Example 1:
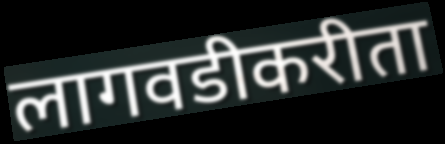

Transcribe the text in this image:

लागवडीकरीता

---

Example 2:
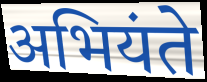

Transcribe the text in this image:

अभियंते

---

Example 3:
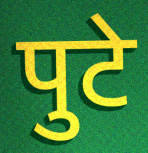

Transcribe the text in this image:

पुटे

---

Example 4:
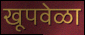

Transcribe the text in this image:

खूपवेळा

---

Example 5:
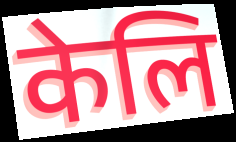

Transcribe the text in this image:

केलि